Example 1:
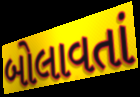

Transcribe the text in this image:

બોલાવતાં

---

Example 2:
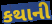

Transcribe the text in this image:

કથાની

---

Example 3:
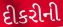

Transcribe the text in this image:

દીકરીની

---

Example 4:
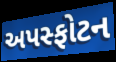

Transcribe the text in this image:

અપસ્ફોટન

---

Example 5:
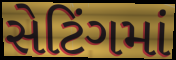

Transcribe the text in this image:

સેટિંગમાં